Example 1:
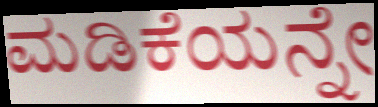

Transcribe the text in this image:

ಮಡಿಕೆಯನ್ನೇ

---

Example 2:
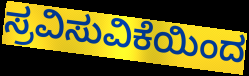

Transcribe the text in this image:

ಸ್ರವಿಸುವಿಕೆಯಿಂದ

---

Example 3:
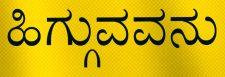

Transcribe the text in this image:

ಹಿಗ್ಗುವವನು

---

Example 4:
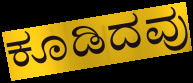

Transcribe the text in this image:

ಕೂಡಿದವು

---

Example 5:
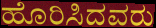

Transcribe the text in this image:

ಹೊರಿಸಿದವರು